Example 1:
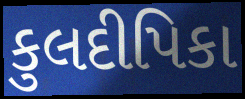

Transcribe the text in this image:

કુલદીપિકા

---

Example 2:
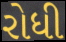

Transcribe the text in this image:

રોધી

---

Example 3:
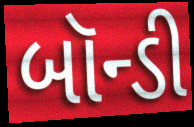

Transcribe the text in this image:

બૉન્ડી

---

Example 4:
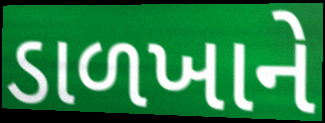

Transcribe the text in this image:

ડાળખાને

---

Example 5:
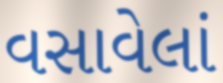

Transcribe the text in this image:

વસાવેલાં